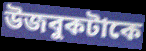
উজবুকটাকে